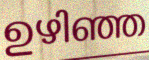
ഉഴിഞ്ഞ